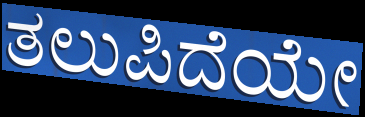
ತಲುಪಿದೆಯೇ